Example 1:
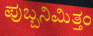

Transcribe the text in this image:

ಪುಬ್ಬನಿಮಿತ್ತಂ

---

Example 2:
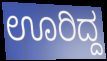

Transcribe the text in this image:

ಊರಿದ್ದ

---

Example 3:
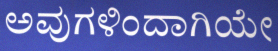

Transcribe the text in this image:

ಅವುಗಳಿಂದಾಗಿಯೇ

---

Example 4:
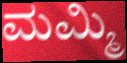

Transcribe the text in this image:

ಮಮ್ಮಿ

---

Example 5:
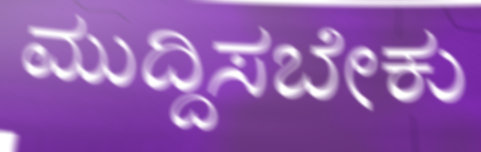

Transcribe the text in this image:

ಮುದ್ದಿಸಬೇಕು